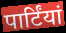
पार्टिंयां